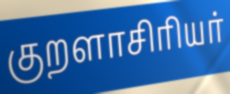
குறளாசிரியர்